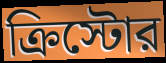
ক্রিস্টোর